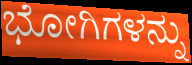
ಭೋಗಿಗಳನ್ನು